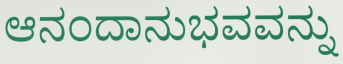
ಆನಂದಾನುಭವವನ್ನು